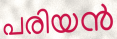
പരിയൻ